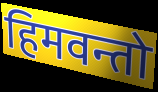
हिमवन्तो